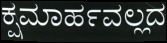
ಕ್ಷಮಾರ್ಹವಲ್ಲದ